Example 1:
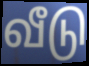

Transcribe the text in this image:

வீடு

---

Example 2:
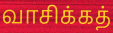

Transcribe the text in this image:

வாசிக்கத்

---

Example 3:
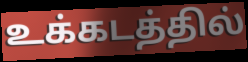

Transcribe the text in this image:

உக்கடத்தில்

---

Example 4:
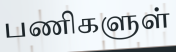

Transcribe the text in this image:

பணிகளுள்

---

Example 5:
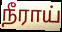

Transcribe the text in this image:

நீராய்